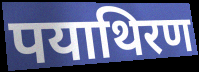
पयाथिरण